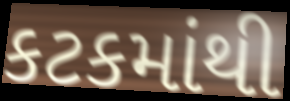
કટકમાંથી